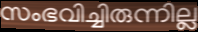
സംഭവിച്ചിരുന്നില്ല